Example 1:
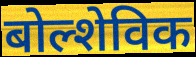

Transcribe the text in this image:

बोल्शेविक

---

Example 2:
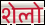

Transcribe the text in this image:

शेलो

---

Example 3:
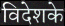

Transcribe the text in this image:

विदेशके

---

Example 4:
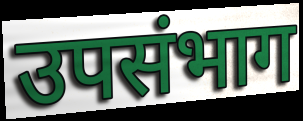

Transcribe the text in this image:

उपसंभाग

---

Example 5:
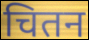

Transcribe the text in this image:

चितन